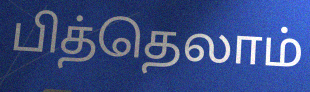
பித்தெலாம்